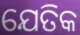
ଯେତିକ